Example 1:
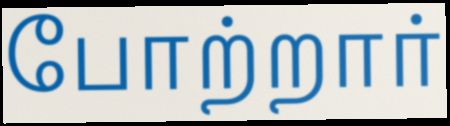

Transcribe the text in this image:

போற்றார்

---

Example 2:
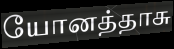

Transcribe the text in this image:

யோனத்தாசு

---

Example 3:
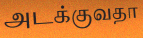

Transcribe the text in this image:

அடக்குவதா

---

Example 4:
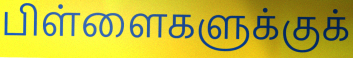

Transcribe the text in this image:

பிள்ளைகளுக்குக்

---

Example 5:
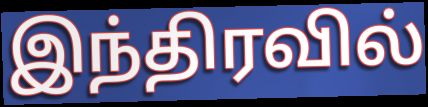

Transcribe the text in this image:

இந்திரவில்